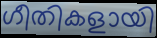
ഗീതികളായി